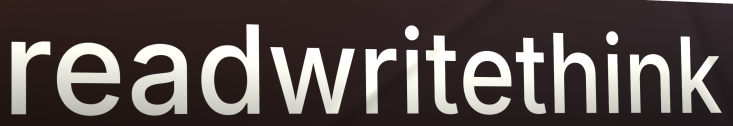
readwritethink